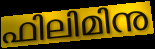
ഫിലിമിനു